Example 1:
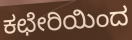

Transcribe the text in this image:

ಕಛೇರಿಯಿಂದ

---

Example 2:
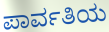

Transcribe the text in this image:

ಪಾರ್ವತಿಯ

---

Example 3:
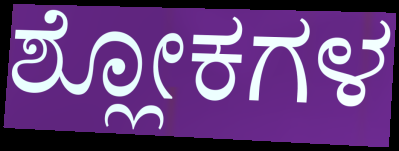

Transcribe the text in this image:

ಶ್ಲೋಕಗಳ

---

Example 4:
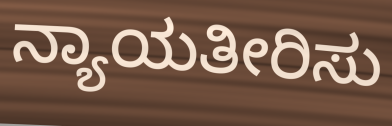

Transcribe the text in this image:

ನ್ಯಾಯತೀರಿಸು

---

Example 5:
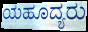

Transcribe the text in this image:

ಯಹೂದ್ಯರು